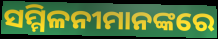
ସମ୍ମିଳନୀମାନଙ୍କରେ